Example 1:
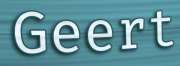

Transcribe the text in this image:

Geert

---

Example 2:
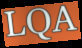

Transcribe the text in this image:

LQA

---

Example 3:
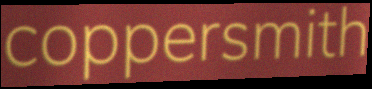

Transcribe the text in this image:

coppersmith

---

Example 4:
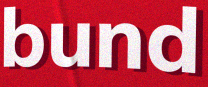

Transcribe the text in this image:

bund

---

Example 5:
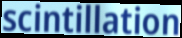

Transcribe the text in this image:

scintillation